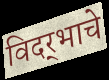
विदर्भाचे